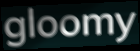
gloomy